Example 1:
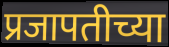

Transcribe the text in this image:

प्रजापतीच्या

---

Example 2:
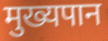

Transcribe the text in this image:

मुख्यपान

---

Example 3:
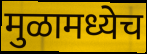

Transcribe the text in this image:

मुळामध्येच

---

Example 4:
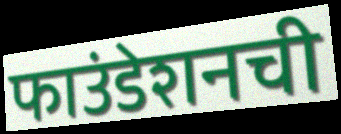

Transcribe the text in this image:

फाउंडेशनची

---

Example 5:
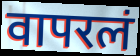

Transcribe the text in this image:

वापरलं